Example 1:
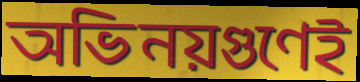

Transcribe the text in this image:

অভিনয়গুণেই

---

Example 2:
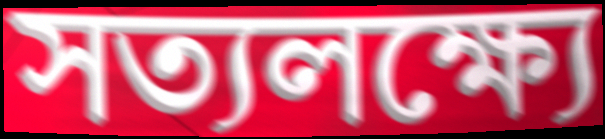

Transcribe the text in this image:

সত্যলক্ষ্যে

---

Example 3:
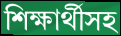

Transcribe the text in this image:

শিক্ষার্থীসহ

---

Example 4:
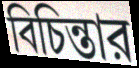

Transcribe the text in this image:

বিচিন্তার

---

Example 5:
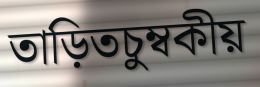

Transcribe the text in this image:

তাড়িতচুম্বকীয়